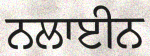
ਨਲਾਈਨ